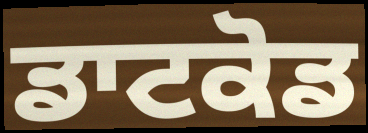
ਡਾਟਕੋਡ